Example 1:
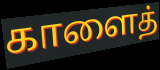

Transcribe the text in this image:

காளைத்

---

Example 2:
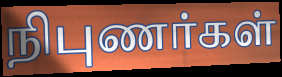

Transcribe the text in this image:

நிபுணர்கள்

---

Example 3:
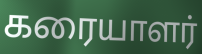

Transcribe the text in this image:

கரையாளர்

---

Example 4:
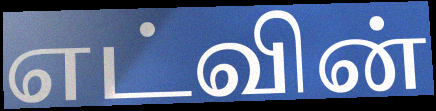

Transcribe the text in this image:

எட்வின்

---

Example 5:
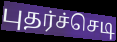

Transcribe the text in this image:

புதர்ச்செடி